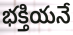
భక్తియనే